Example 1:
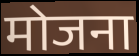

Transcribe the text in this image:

मोजना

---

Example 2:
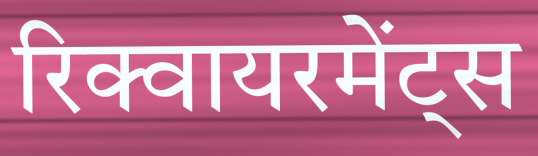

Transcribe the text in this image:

रिक्वायरमेंट्स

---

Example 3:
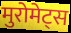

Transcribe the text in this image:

मुरोमेट्स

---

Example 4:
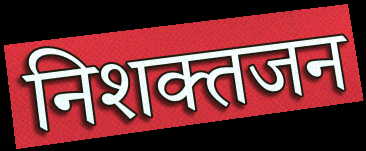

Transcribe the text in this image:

निशक्तजन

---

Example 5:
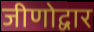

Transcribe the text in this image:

जीणोद्वार